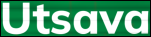
Utsava